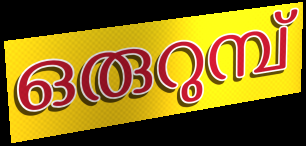
ഒരുറുമ്പ്